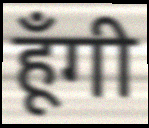
हूँगी